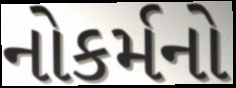
નોકર્મનો